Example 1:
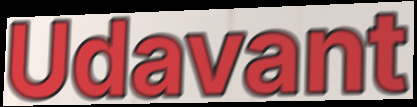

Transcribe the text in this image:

Udavant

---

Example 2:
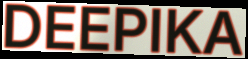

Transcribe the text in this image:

DEEPIKA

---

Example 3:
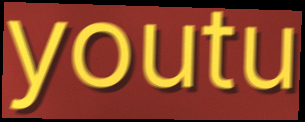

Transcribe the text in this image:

youtu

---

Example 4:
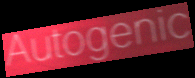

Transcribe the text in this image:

Autogenic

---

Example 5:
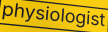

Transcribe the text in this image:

physiologist